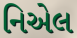
નિએલ